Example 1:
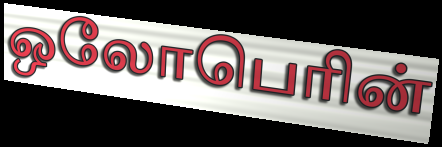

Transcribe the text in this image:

ஒலோபெரின்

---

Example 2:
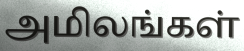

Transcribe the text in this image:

அமிலங்கள்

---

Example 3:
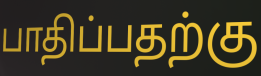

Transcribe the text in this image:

பாதிப்பதற்கு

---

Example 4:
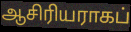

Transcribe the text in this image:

ஆசிரியராகப்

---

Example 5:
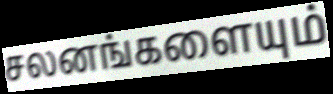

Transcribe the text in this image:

சலனங்களையும்